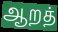
ஆறத்